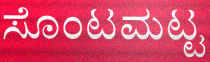
ಸೊಂಟಮಟ್ಟ